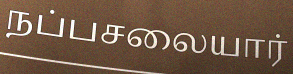
நப்பசலையார்